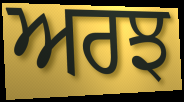
ਅਰਝ